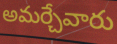
అమర్చేవారు